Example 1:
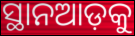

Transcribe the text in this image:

ସ୍ଥାନଆଡ଼କୁ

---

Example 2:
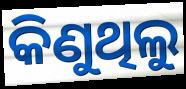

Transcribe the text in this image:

କିଣୁଥିଲୁ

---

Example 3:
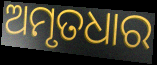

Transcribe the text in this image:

ଅମୃତଧାର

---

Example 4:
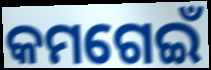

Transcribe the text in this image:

କମଗେଇଁ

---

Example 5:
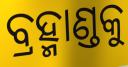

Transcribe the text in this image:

ବ୍ରହ୍ମାଣ୍ଡକୁ